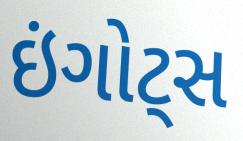
ઇંગોટ્સ